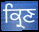
ਕ੍ਰਿਣ